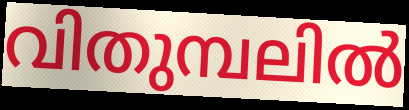
വിതുമ്പലിൽ